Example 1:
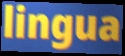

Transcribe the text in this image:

lingua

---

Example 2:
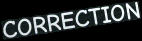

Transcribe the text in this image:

CORRECTION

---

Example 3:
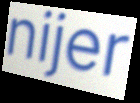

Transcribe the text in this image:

nijer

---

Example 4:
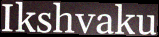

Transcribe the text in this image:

Ikshvaku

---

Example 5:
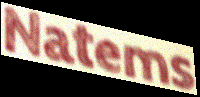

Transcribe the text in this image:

Natems